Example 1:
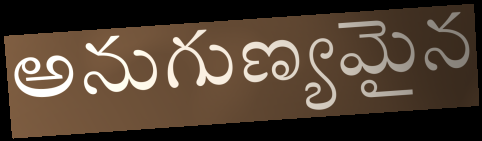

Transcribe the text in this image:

అనుగుణ్యమైన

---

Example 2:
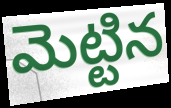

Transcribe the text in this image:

మెట్టిన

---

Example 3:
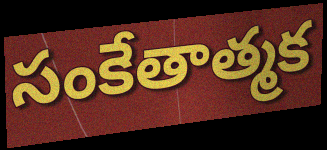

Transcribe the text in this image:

సంకేతాత్మక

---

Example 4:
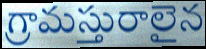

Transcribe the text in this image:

గ్రామస్తురాలైన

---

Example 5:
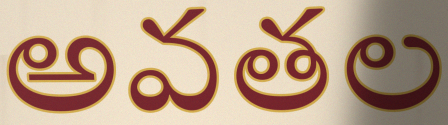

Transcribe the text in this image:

అవతల